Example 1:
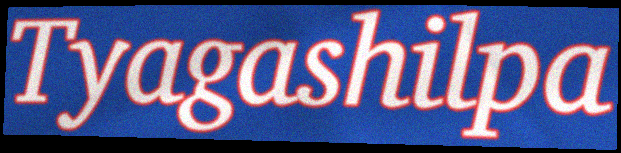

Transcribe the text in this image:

Tyagashilpa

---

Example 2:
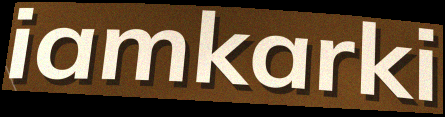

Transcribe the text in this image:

iamkarki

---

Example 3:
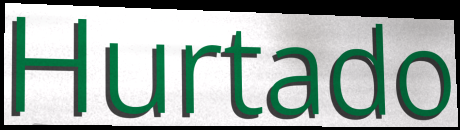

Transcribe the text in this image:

Hurtado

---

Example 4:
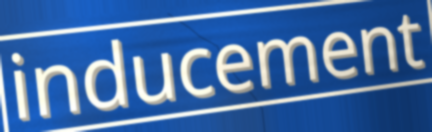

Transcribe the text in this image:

inducement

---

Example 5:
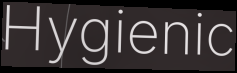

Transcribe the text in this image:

Hygienic